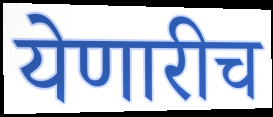
येणारीच